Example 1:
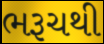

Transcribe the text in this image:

ભરૂચથી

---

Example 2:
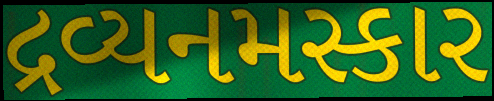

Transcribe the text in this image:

દ્રવ્યનમસ્કાર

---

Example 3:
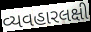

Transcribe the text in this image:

વ્યવહારલક્ષી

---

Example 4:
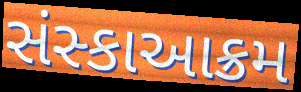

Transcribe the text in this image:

સંસ્કાઆક્રમ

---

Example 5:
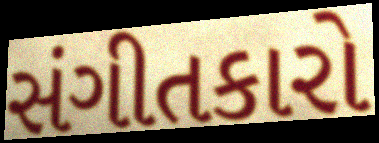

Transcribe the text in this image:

સંગીતકારો